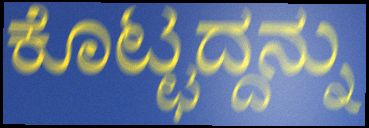
ಕೊಟ್ಟದ್ದನ್ನು